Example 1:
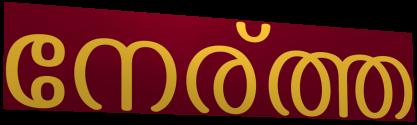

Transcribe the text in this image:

നേര്ത്ത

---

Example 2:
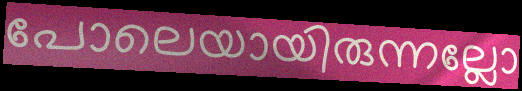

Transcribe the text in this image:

പോലെയായിരുന്നല്ലോ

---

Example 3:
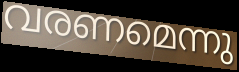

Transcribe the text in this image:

വരണമെന്നു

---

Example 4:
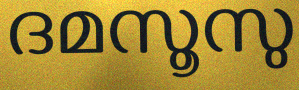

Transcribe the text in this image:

ദമസൂസു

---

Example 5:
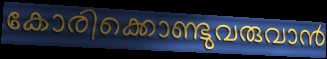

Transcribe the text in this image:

കോരിക്കൊണ്ടുവരുവാൻ